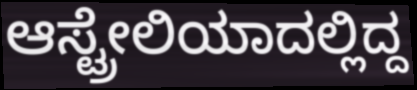
ಆಸ್ಟ್ರೇಲಿಯಾದಲ್ಲಿದ್ದ